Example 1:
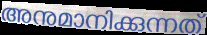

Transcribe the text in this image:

അനുമാനിക്കുന്നത്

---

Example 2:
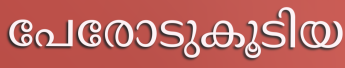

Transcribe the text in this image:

പേരോടുകൂടിയ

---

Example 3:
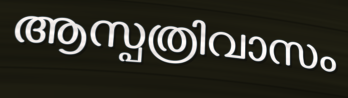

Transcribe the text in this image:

ആസ്പത്രിവാസം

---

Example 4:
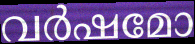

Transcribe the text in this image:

വർഷമോ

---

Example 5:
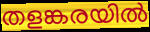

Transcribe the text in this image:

തളങ്കരയിൽ